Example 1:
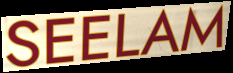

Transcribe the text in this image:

SEELAM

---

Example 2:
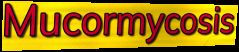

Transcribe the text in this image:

Mucormycosis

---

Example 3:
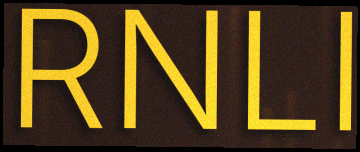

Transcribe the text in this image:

RNLI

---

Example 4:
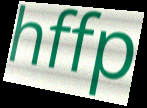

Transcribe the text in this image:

hffp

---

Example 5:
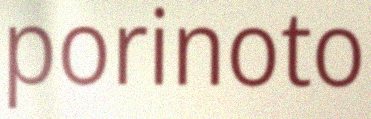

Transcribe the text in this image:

porinoto